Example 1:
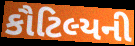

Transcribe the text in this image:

કૌટિલ્યની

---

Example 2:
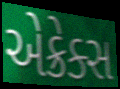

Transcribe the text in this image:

એક્રેક્સ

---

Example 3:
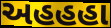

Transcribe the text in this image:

અહહહા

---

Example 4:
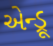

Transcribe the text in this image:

એન્ડ્રૂ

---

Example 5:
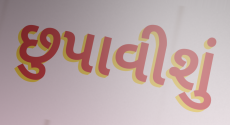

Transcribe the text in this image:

છુપાવીશું